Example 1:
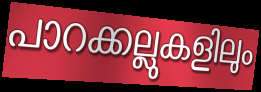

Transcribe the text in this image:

പാറക്കല്ലുകളിലും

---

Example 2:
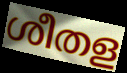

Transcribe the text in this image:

ശീതള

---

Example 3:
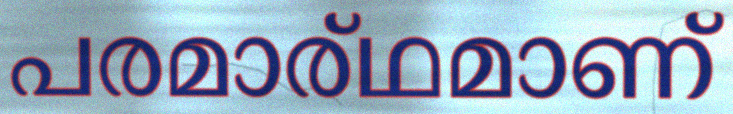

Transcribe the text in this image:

പരമാര്ഥമാണ്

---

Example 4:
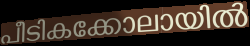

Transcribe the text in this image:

പീടികക്കോലായിൽ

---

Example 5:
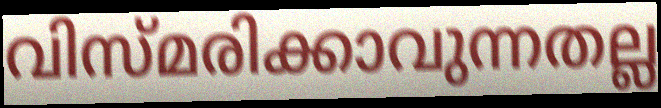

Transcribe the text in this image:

വിസ്മരിക്കാവുന്നതല്ല